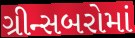
ગ્રીન્સબરોમાં